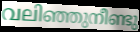
വലിഞ്ഞുനീണ്ടു